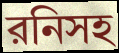
রনিসহ